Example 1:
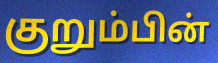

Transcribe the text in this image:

குறும்பின்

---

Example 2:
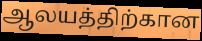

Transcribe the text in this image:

ஆலயத்திற்கான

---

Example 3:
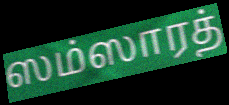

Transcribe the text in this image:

ஸம்ஸாரத்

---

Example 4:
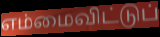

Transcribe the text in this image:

எம்மைவிட்டுப்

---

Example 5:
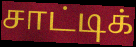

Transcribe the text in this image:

சாட்டிக்